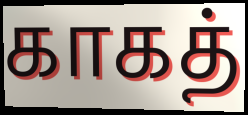
காகத்